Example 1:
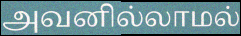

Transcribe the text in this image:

அவனில்லாமல்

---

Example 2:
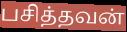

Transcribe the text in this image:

பசித்தவன்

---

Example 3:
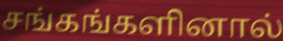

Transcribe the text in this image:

சங்கங்களினால்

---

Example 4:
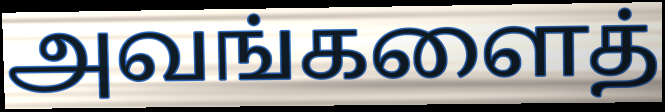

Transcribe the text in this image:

அவங்களைத்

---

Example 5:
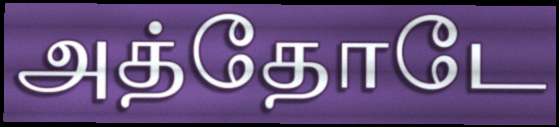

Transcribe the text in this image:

அத்தோடே